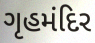
ગૃહમંદિર